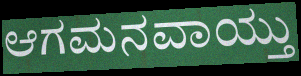
ಆಗಮನವಾಯ್ತು